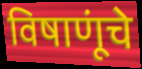
विषाणूंचे